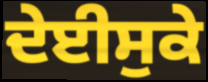
ਦੇਈਸੁਕੇ